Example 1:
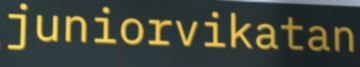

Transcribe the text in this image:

juniorvikatan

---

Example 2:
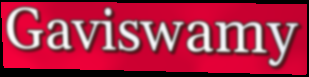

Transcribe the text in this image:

Gaviswamy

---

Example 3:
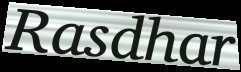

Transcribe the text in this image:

Rasdhar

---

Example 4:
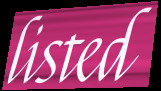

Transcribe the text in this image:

listed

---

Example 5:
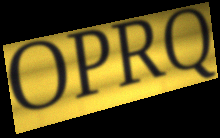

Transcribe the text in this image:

OPRQ